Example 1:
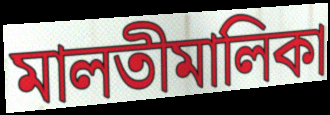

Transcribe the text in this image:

মালতীমালিকা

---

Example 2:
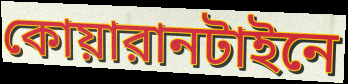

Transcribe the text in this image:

কোয়ারানটাইনে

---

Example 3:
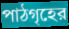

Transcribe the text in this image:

পাঠগৃহের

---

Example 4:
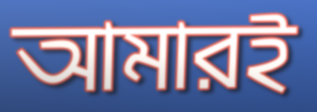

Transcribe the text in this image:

আমারই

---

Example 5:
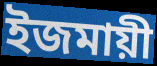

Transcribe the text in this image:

ইজমায়ী